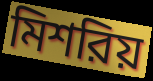
মিশরিয়